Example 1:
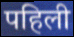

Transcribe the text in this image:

पहिली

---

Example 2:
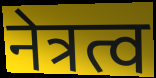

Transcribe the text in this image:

नेत्रत्व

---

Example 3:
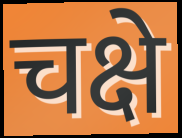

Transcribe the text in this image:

चक्षे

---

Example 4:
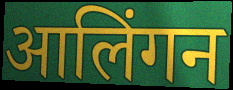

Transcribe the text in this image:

आलिंगन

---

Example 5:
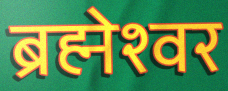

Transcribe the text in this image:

ब्रह्मेश्वर